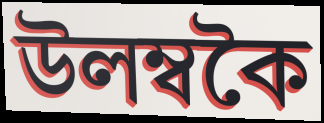
উলম্বকৈ